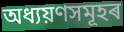
অধ্যয়ণসমূহৰ